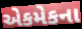
એકમેકના